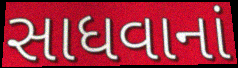
સાધવાનાં